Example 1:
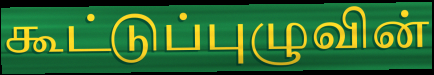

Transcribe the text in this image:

கூட்டுப்புழுவின்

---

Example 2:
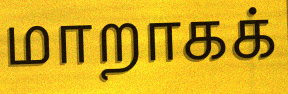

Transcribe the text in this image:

மாறாகக்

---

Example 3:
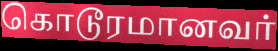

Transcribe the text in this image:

கொடூரமானவர்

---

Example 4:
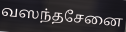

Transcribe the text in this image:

வஸந்தசேனை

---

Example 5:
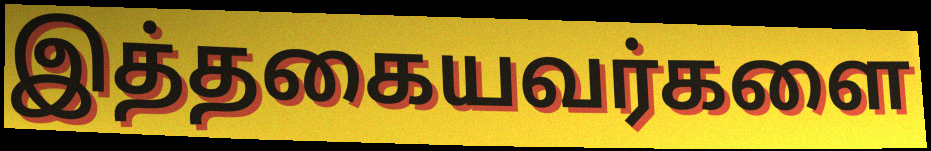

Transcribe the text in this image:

இத்தகையவர்களை